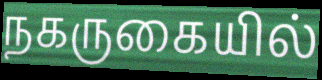
நகருகையில்